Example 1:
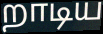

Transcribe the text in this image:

றாடிய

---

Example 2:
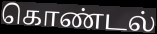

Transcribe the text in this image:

கொண்டல்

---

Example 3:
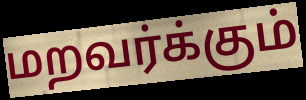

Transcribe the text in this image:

மறவர்க்கும்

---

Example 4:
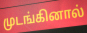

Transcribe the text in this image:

முடங்கினால்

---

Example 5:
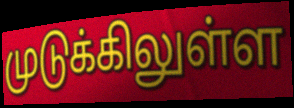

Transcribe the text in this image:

முடுக்கிலுள்ள